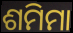
ଶମିମା